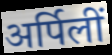
अर्पिलीं